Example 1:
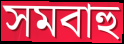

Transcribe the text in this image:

সমবাহু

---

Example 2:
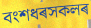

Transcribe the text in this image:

বংশধৰসকলৰ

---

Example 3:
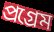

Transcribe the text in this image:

প্ৰগ্ৰেম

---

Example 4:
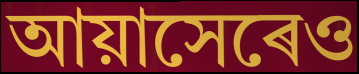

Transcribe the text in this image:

আয়াসেৰেও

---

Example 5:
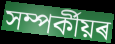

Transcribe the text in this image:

সম্পৰ্কীয়ৰ